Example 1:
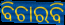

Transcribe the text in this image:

ବିଚାରବି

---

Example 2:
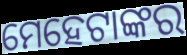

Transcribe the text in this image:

ମେହେଟାଙ୍କର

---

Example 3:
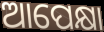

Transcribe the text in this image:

ଆପେକ୍ଷା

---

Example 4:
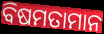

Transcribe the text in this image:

ବିଷମତାମାନ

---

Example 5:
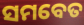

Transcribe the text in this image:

ସମବେତ